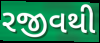
રજીવથી